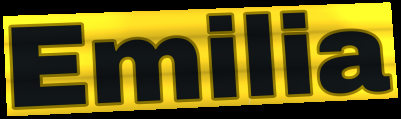
Emilia